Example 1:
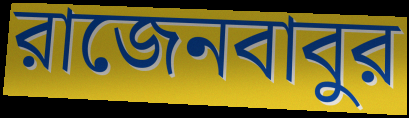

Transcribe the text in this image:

রাজেনবাবুর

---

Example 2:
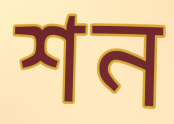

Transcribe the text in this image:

শন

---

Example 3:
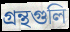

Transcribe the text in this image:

গ্রন্থগুলি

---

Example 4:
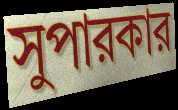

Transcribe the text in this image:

সুপারকার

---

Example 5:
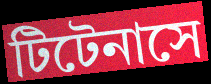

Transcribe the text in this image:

টিটেনাসে